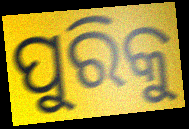
ପୁରିକୁ